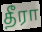
தீரா